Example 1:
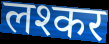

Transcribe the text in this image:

लश्कर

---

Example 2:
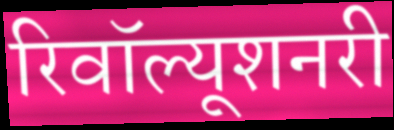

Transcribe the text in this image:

रिवॉल्यूशनरी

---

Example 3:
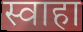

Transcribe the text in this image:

स्वाहा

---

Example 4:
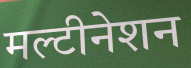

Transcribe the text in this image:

मल्टीनेशन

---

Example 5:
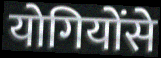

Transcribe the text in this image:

योगियोंसे